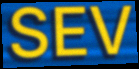
SEV